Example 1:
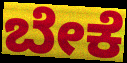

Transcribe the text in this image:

ಬೇಕೆ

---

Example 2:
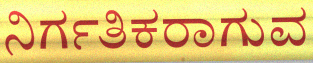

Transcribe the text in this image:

ನಿರ್ಗತಿಕರಾಗುವ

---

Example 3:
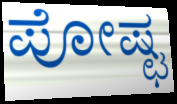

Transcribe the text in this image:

ಪೋಷ್ಟ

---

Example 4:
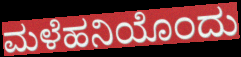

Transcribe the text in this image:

ಮಳೆಹನಿಯೊಂದು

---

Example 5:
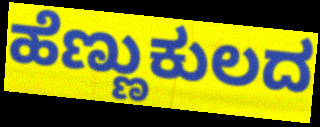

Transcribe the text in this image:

ಹೆಣ್ಣುಕುಲದ